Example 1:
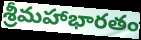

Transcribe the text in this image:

శ్రీమహాభారతం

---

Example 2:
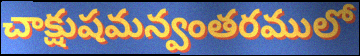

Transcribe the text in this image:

చాక్షుషమన్వంతరములో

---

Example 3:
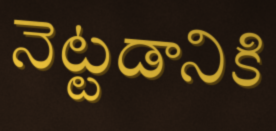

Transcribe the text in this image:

నెట్టడానికి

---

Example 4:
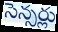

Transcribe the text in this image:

సెన్సర్లు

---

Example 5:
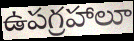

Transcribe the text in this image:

ఉపగ్రహాలూ